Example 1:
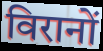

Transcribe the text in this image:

विरानों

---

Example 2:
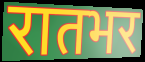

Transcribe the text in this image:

रातभर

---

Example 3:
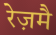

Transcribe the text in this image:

रेज़मै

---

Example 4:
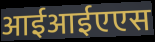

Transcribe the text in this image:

आईआईएएस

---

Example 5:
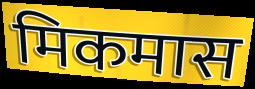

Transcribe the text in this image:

मिकमास